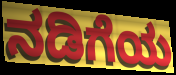
ನಡಿಗೆಯ